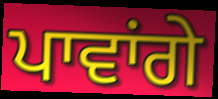
ਪਾਵਾਂਗੇ